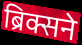
ब्रिक्सने